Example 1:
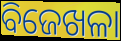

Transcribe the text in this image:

ବିଜେଖଳା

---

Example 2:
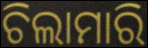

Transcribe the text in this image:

ଚିଲାମାରି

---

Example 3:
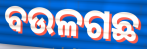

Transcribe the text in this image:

ବଉଳଗଛ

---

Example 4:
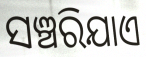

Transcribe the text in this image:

ସଞ୍ଚରିଯାଏ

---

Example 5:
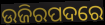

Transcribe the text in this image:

ଉଜିରପଦରେ